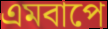
এমবাপে